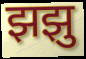
झझु